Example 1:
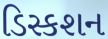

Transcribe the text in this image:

ડિસ્કશન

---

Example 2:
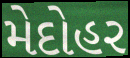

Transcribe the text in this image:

મેદોહર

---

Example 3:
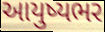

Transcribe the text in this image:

આયુષ્યભર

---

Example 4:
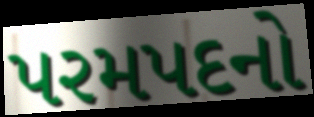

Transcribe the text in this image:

પરમપદનો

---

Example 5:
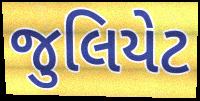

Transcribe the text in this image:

જુલિયેટ